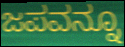
ಜಪವನ್ನೂ